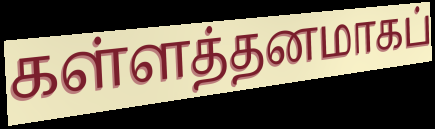
கள்ளத்தனமாகப்